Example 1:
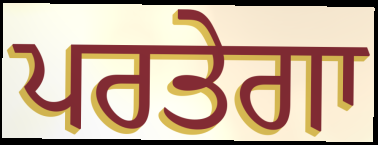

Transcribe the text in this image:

ਪਰਤੇਗਾ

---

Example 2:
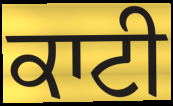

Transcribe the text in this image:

ਕਾਟੀ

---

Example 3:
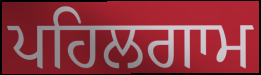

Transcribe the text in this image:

ਪਹਿਲਗਾਮ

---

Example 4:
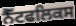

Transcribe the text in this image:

ਨੈੱਟਫਲਿਕਸ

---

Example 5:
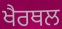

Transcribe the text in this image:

ਖੈਰਥਲ